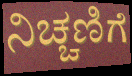
ನಿಚ್ಚಣಿಗೆ